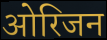
ओरिजन